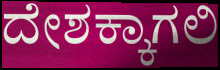
ದೇಶಕ್ಕಾಗಲಿ